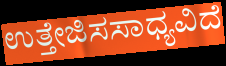
ಉತ್ತೇಜಿಸಸಾಧ್ಯವಿದೆ